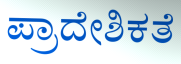
ಪ್ರಾದೇಶಿಕತೆ